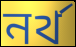
নর্থ